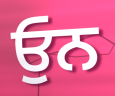
ਓੁਨ